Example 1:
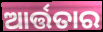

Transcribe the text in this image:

ଆର୍ତ୍ତତାର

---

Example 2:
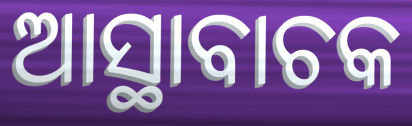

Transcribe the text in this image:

ଆସ୍ଥାବାଚକ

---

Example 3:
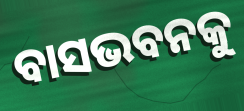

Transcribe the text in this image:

ବାସଭବନକୁ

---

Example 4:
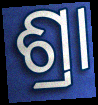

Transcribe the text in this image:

ଶ୍ରା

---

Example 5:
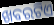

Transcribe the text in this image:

ଖବରଟିଏ